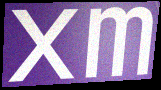
xm